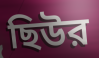
ছিউর